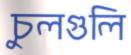
চুলগুলি